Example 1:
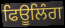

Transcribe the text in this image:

ਫਿਊਲਿੰਗ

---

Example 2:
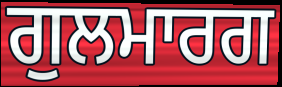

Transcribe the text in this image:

ਗੁਲਮਾਰਗ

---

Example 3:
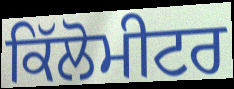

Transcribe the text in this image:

ਕਿੱਲੋਮੀਟਰ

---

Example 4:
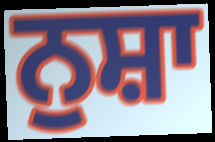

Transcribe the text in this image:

ਨੁਸ਼ਾ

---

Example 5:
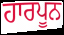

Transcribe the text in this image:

ਹਾਰਪੂਨ